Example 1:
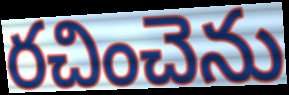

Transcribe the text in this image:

రచించెను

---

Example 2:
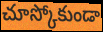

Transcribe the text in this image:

చూస్కోకుండా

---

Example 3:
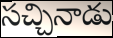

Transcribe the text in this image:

సచ్చినాడు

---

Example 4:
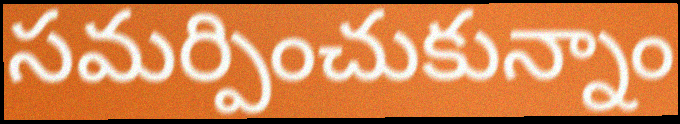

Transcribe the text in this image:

సమర్పించుకున్నాం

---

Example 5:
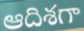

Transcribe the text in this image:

ఆదిశగా